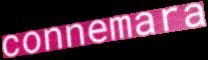
connemara